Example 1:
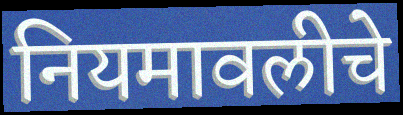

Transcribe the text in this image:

नियमावलीचे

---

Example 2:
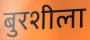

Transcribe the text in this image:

बुरशीला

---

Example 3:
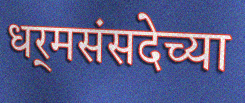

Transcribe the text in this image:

धर्मसंसदेच्या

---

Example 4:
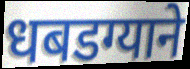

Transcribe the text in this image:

धबडग्याने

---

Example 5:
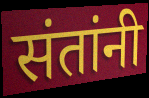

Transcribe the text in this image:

संतांनी